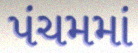
પંચમમાં